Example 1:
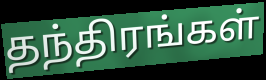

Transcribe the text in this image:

தந்திரங்கள்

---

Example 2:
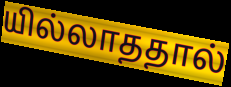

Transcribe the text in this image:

யில்லாததால்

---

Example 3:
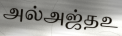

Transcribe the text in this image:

அல்அஜ்தஉ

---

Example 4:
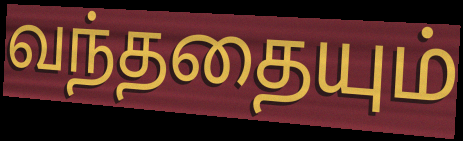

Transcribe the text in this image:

வந்ததையும்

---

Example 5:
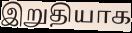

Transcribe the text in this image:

இறுதியாக